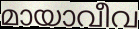
മായാവീവ